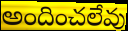
అందించలేవు